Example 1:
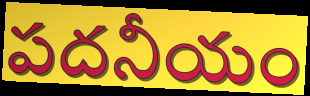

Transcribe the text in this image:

పదనీయం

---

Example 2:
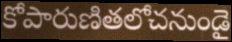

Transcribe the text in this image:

కోపారుణితలోచనుండై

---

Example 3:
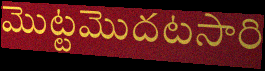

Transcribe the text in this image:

మొట్టమొదటసారి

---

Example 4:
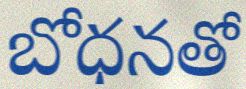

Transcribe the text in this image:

బోధనతో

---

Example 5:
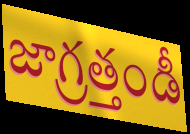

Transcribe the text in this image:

జాగ్రత్తండీ